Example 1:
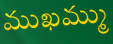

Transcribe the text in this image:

ముఖమ్ము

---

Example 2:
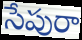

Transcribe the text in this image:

సేపురా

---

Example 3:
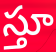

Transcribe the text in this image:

స్తూ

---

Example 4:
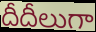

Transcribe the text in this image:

దీదీలుగా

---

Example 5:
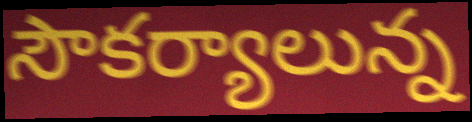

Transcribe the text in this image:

సౌకర్యాలున్న